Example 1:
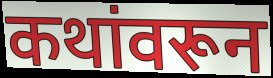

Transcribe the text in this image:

कथांवरून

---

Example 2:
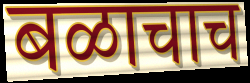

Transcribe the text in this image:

बळाचाच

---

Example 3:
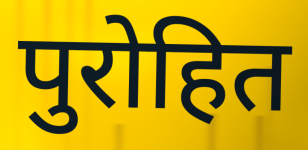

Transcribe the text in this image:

पुरोहित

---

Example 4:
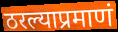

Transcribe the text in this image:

ठरल्याप्रमाणं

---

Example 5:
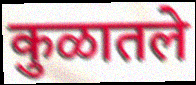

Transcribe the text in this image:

कुळातले